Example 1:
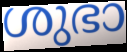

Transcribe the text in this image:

ശുഭാ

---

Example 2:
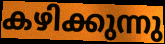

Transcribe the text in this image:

കഴിക്കുന്നു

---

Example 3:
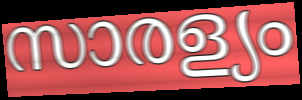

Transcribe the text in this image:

സാരള്യം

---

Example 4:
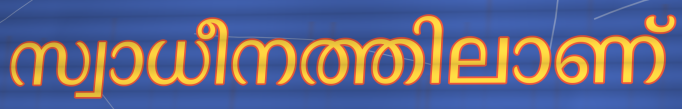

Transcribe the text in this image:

സ്വാധീനത്തിലാണ്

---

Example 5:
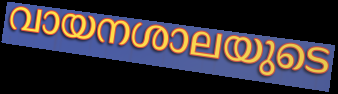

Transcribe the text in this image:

വായനശാലയുടെ